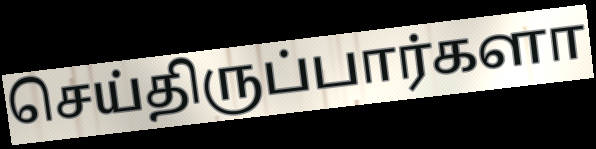
செய்திருப்பார்களா